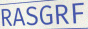
RASGRF